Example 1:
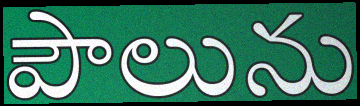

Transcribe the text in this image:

పౌలును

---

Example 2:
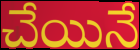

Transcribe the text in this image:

చేయినే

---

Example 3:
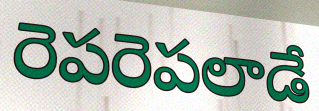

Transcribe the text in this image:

రెపరెపలాడే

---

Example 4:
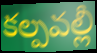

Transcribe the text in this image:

కల్పవల్లీ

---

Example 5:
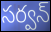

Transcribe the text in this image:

సర్వన్